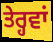
ਤੇਰ੍ਹਵਾਂ